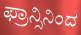
ಫ್ರಾನ್ಸಿನಿಂದ